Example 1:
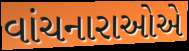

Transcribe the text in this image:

વાંચનારાઓએ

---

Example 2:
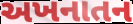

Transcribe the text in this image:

અખનાતન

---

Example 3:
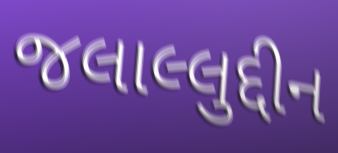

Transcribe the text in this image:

જલાલ્લુદ્દીન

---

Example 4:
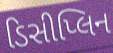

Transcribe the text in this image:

ડિસીપ્લિન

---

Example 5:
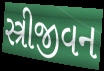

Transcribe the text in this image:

સ્ત્રીજીવન